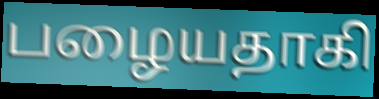
பழையதாகி